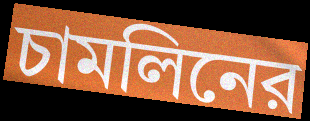
চামলিনের